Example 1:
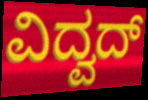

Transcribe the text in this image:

ವಿದ್ವದ್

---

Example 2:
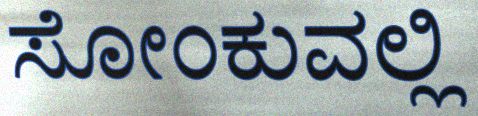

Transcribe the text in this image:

ಸೋಂಕುವಲ್ಲಿ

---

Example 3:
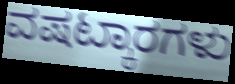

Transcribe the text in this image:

ವಷಟ್ಕಾರಗಳು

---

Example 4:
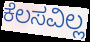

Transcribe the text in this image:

ಕೆಲಸವಿಲ್ಲ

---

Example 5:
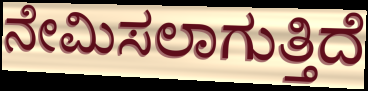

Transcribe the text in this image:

ನೇಮಿಸಲಾಗುತ್ತಿದೆ